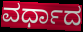
ವರ್ಧಾದ